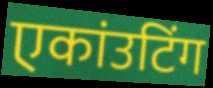
एकांउटिंग